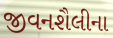
જીવનશૈલીના